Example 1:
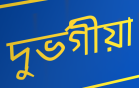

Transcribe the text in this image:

দুৰ্ভগীয়া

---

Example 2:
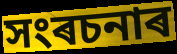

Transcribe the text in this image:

সংৰচনাৰ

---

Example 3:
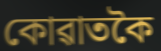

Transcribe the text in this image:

কোৱাতকৈ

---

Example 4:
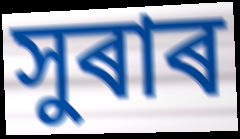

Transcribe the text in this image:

সুৰাৰ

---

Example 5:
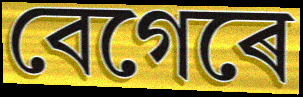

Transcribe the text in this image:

বেগেৰে